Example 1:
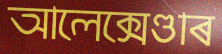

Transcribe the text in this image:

আলেক্সেণ্ডাৰ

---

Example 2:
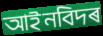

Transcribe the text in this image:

আইনবিদৰ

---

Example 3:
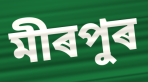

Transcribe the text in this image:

মীৰপুৰ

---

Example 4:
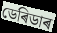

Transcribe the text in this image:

ডেৰিডাৰ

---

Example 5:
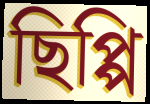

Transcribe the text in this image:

ছিপ্পি